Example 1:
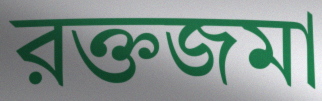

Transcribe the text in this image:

রক্তজমা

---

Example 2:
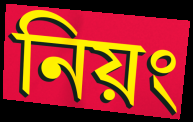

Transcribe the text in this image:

নিয়ং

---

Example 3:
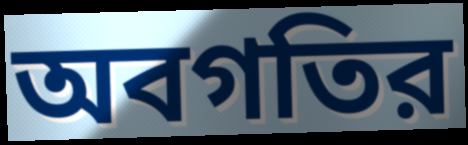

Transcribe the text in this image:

অবগতির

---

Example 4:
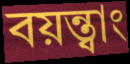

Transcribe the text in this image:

বয়ন্ত্বাং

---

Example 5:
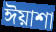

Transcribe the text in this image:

ঈয়াশা